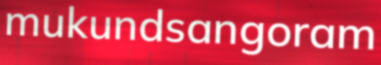
mukundsangoram